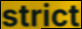
strict